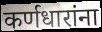
कर्णधारांना